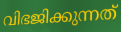
വിഭജിക്കുന്നത്